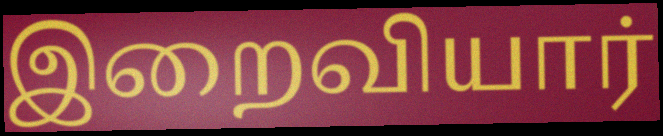
இறைவியார்